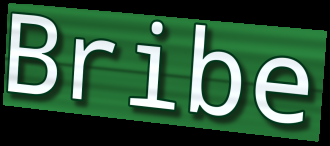
Bribe